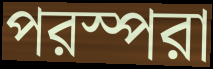
পরস্পরা